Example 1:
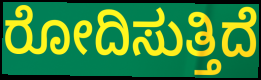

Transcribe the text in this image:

ರೋದಿಸುತ್ತಿದೆ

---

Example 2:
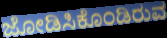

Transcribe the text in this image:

ಜೋಡಿಸಿಕೊಂಡಿರುವ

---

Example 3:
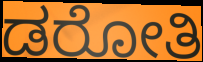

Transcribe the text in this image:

ಡರೋತಿ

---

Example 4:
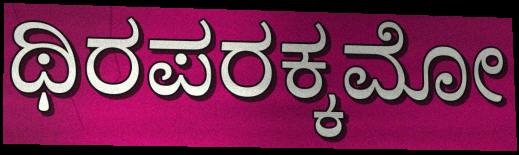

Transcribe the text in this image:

ಥಿರಪರಕ್ಕಮೋ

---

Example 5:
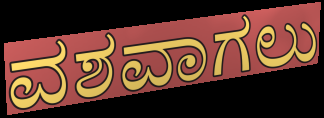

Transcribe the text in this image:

ವಶವಾಗಲು